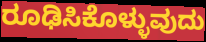
ರೂಢಿಸಿಕೊಳ್ಳುವುದು